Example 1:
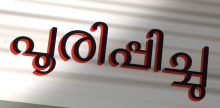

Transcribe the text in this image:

പൂരിപ്പിച്ചു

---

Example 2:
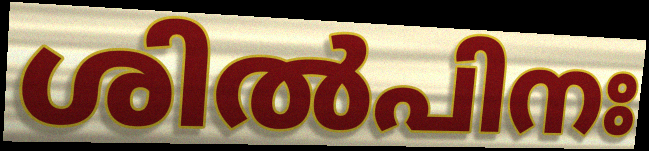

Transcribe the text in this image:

ശിൽപിനഃ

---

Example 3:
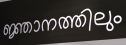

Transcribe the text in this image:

ജ്ഞാനത്തിലും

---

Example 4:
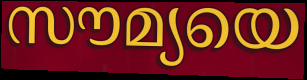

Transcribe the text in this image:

സൗമ്യയെ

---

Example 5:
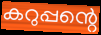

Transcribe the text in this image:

കറുപ്പന്റെ